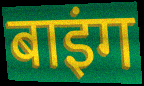
बाइंग